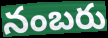
నంబరు